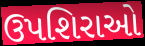
ઉપશિરાઓ